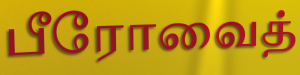
பீரோவைத்